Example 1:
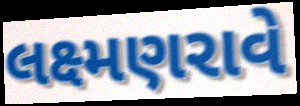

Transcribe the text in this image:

લક્ષ્મણરાવે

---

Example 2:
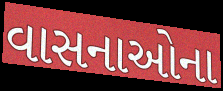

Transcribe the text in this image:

વાસનાઓના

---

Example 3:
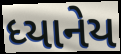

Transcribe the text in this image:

ધ્યાનેય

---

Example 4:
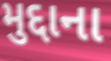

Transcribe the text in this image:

મુદ્દાના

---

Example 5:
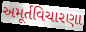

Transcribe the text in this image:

અમૂર્તવિચારણા